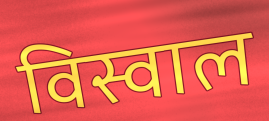
विस्वाल